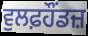
ਵੁਲਫ਼ਹੌਂਡਜ਼